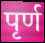
पृर्ण